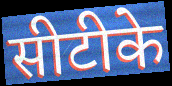
सीटीके